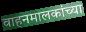
वाहनमालकांच्या